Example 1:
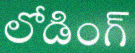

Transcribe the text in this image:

లోడింగ్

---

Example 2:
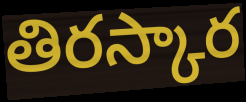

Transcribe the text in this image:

తిరస్కార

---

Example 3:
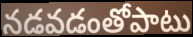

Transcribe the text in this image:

నడవడంతోపాటు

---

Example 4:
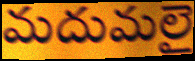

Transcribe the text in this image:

మదుమలై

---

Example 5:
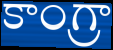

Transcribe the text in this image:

కాంగ్రా